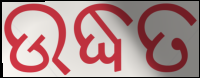
ଉଦ୍ଧତ